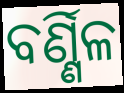
ବର୍ଣ୍ଣିଳ